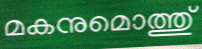
മകനുമൊത്തു്